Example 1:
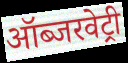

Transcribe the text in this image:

ऑब्जरवेट्री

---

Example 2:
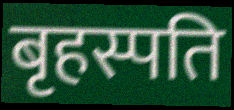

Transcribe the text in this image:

बृहस्‍पति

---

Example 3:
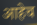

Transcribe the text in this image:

आहेच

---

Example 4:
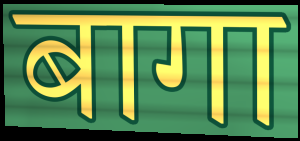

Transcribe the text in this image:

बागा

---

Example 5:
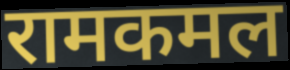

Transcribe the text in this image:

रामकमल